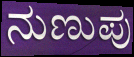
ನುಣುಪು